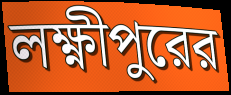
লক্ষ্ণীপুরের